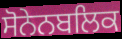
ਸੋਨੇਨਬਲਿਕ